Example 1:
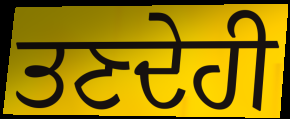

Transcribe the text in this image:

ਤਣਦੇਹੀ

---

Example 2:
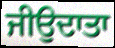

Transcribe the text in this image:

ਜੀਉਦਾਤਾ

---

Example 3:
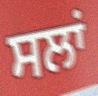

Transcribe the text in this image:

ਸਲਾਂ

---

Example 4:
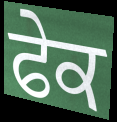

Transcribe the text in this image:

ਫੇਕ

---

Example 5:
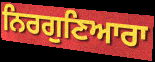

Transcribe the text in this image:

ਨਿਰਗੁਣਿਆਰਾ